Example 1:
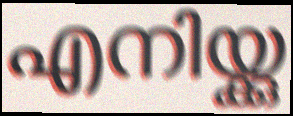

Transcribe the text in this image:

എനിയ്ക്കു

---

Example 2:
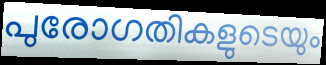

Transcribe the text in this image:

പുരോഗതികളുടെയും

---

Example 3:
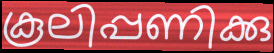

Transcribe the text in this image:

കൂലിപ്പണിക്കു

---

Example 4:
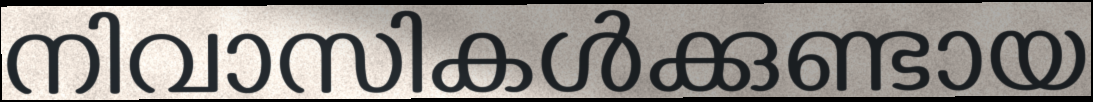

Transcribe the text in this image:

നിവാസികൾക്കുണ്ടായ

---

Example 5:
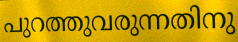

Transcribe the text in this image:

പുറത്തുവരുന്നതിനു